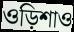
ওড়িশাও